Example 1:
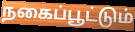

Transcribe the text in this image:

நகைப்பூட்டும்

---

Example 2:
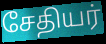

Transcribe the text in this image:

சேதியர்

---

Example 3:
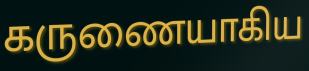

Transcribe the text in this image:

கருணையாகிய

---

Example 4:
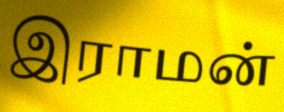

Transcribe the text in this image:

இராமன்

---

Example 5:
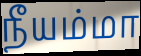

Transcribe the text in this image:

நீயம்மா